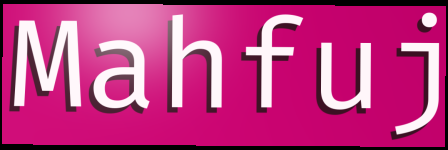
Mahfuj